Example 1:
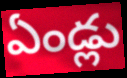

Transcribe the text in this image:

ఏండ్లు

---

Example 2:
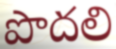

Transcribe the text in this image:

పొదలి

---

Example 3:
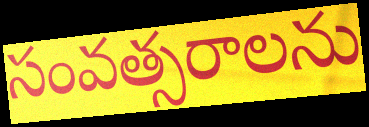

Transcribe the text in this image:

సంవత్సరాలను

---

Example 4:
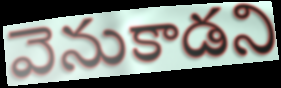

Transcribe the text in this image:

వెనుకాడని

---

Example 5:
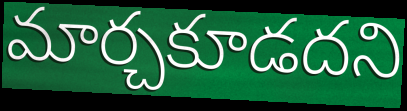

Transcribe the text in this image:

మార్చకూడదని